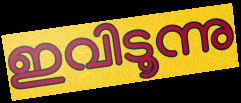
ഇവിടൂന്നു